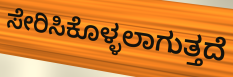
ಸೇರಿಸಿಕೊಳ್ಳಲಾಗುತ್ತದೆ